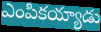
ఎంపికయ్యాడు